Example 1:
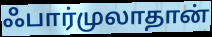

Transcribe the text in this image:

ஃபார்முலாதான்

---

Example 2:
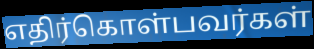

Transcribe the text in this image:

எதிர்கொள்பவர்கள்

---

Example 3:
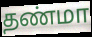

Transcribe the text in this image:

தண்மா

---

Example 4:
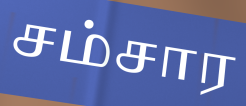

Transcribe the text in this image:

சம்சார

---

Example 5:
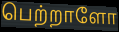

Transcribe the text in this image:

பெற்றாளோ